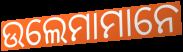
ଉଲେମାମାନେ